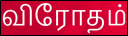
விரோதம்